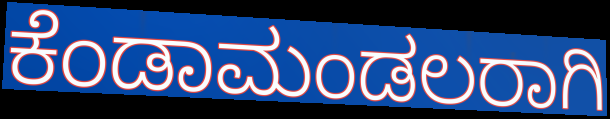
ಕೆಂಡಾಮಂಡಲರಾಗಿ